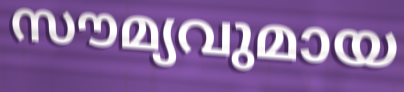
സൗമ്യവുമായ